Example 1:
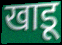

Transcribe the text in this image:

खाडू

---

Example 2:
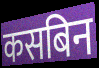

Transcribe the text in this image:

कसबिन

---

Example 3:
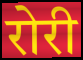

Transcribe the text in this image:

रोरी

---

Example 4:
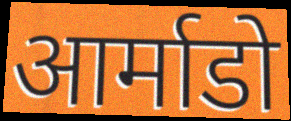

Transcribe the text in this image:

आर्माडो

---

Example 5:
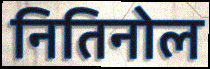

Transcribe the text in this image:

नितिनोल